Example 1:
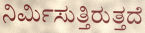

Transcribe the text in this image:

ನಿರ್ಮಿಸುತ್ತಿರುತ್ತದೆ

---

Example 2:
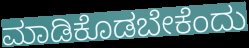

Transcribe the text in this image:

ಮಾಡಿಕೊಡಬೇಕೆಂದು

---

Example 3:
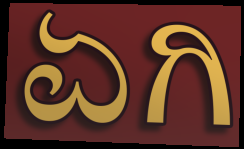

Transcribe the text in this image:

ಏಗಿ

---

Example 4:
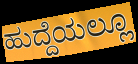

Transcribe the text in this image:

ಹುದ್ದೆಯಲ್ಲೂ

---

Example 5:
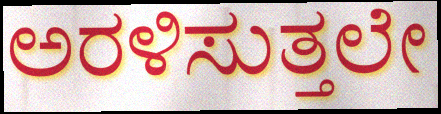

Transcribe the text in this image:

ಅರಳಿಸುತ್ತಲೇ